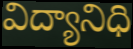
విద్యానిధి